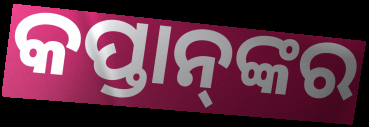
କପ୍ତାନ୍‌ଙ୍କର